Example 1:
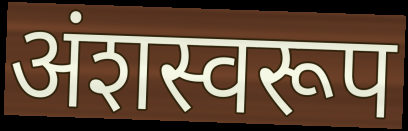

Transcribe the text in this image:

अंशस्वरूप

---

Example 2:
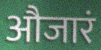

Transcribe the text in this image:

औजारं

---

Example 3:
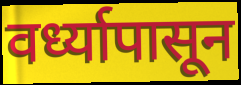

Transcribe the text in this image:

वर्ध्यापासून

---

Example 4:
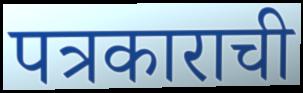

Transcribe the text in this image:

पत्रकाराची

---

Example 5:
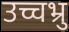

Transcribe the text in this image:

उच्चभ्रु